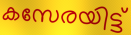
കസേരയിട്ട്